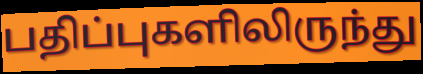
பதிப்புகளிலிருந்து